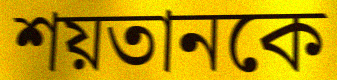
শয়তানকে